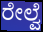
ರೇಲ್ವೆ